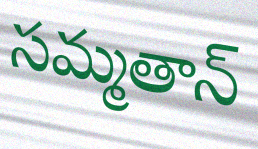
సమ్మతాన్